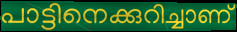
പാട്ടിനെക്കുറിച്ചാണ്